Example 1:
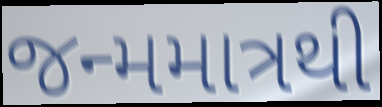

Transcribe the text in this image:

જન્મમાત્રથી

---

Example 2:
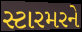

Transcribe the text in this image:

સ્ટારમરને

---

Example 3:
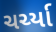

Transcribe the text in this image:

ચર્ચ્યા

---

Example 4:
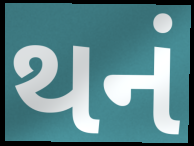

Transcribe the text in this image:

થનં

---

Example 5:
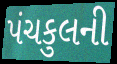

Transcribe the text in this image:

પંચકુલની